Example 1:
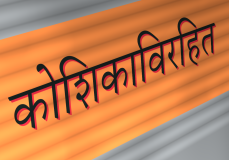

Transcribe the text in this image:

कोशिकाविरहित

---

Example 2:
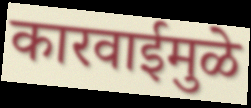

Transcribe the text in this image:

कारवाईमुळे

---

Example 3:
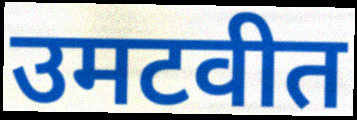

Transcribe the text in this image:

उमटवीत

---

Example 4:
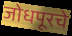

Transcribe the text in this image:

जोधपूरचे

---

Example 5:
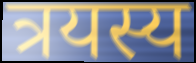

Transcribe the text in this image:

त्रयस्य